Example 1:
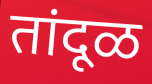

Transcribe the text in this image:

तांदूळ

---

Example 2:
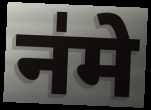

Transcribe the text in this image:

न॑मे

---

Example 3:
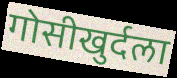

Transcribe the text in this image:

गोसीखुर्दला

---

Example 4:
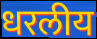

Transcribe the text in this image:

धरलीय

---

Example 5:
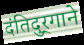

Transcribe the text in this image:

दंतिदुर्गाने